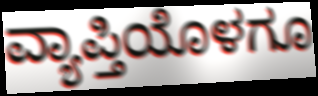
ವ್ಯಾಪ್ತಿಯೊಳಗೂ